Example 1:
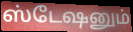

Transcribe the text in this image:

ஸ்டேஷனும்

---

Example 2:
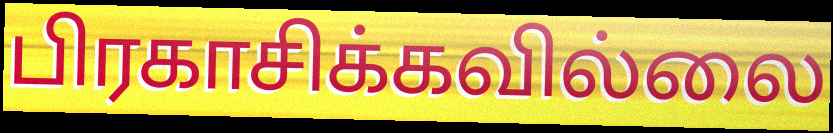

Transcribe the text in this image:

பிரகாசிக்கவில்லை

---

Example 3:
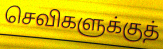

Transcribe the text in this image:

செவிகளுக்குத்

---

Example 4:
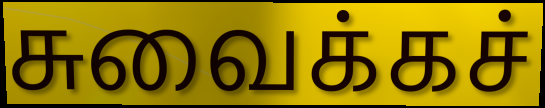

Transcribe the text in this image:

சுவைக்கச்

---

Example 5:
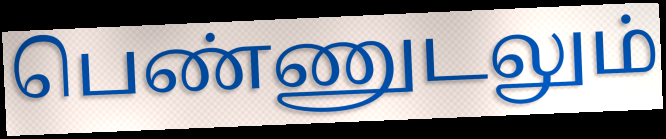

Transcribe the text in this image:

பெண்ணுடலும்